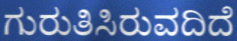
ಗುರುತಿಸಿರುವದಿದೆ